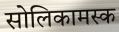
सोलिकामस्क